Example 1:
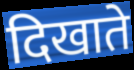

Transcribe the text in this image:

दिखाते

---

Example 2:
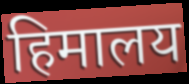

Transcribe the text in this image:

हिमालय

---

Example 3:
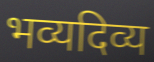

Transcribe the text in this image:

भव्यदिव्य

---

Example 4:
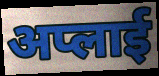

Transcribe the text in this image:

अप्लाई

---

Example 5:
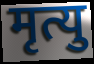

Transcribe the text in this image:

मृत्यु